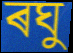
ৰঘু